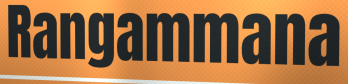
Rangammana